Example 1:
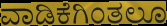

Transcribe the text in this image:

ವಾಡಿಕೆಗಿಂತಲೂ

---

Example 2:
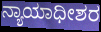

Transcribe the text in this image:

ನ್ಯಾಯಾಧೀಶರ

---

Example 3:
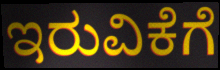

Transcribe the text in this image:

ಇರುವಿಕೆಗೆ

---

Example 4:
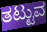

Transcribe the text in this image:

ತಟ್ಟುವ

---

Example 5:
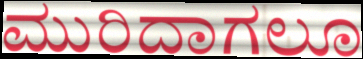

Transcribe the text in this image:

ಮುರಿದಾಗಲೂ